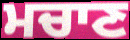
ਮਚਾਣ